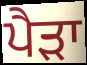
ਪੈੜਾ